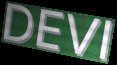
DEVI